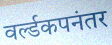
वर्ल्डकपनंतर